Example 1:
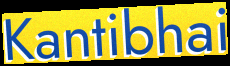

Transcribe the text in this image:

Kantibhai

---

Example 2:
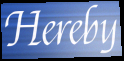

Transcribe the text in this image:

Hereby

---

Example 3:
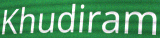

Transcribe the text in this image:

Khudiram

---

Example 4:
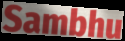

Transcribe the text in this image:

Sambhu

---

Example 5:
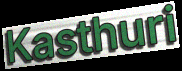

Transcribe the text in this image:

Kasthuri